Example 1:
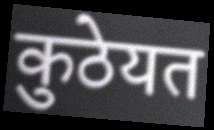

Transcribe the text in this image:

कुठेयत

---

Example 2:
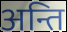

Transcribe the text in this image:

अन्ति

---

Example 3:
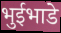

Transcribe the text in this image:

भुईभाडे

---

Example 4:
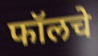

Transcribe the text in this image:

फॉलचे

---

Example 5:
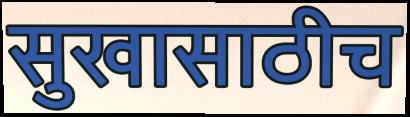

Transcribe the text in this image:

सुखासाठीच